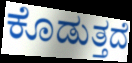
ಕೊಡುತ್ತದೆ